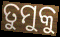
ତୁମୁକୁ